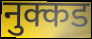
नुक्कड